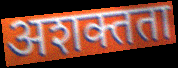
अशक्‍तता